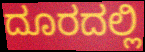
ದೂರದಲ್ಲಿ